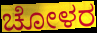
ಚೋಳರ